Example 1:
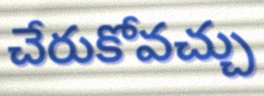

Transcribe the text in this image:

చేరుకోవచ్చు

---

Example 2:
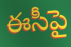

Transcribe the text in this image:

ఈసీపై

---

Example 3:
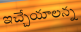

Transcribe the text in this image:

ఇచ్చేయాలన్న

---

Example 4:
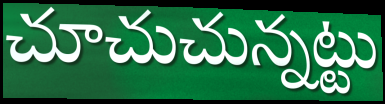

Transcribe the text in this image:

చూచుచున్నట్టు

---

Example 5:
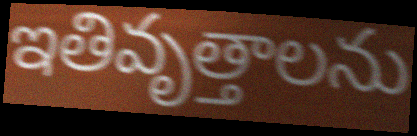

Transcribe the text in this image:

ఇతివృత్తాలను